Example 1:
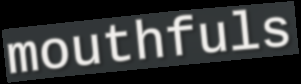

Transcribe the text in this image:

mouthfuls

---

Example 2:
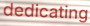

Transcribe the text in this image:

dedicating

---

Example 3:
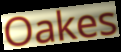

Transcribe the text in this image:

Oakes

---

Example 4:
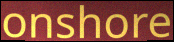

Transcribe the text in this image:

onshore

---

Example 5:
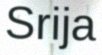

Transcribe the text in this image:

Srija